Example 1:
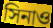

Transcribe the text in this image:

সিনাও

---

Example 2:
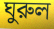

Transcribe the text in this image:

ঘুরুল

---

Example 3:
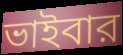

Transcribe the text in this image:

ভাইবার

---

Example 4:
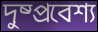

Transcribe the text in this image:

দুষ্প্রবেশ্য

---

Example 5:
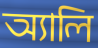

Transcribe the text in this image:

অ্যালি